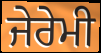
ਜੇਰੇਮੀ